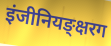
इंजीनियङ्क्षरग